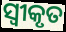
ସ୍ଵୀକୃତ